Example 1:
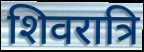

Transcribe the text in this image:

शिवरात्रि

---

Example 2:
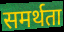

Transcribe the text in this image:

समर्थता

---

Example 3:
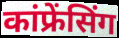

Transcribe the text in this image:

कांफ्रेंसिंग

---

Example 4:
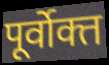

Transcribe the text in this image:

पूर्वोक्‍त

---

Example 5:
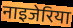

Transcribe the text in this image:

नाइजेरिया